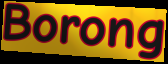
Borong